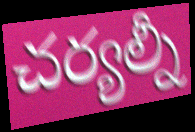
చర్యల్నీ